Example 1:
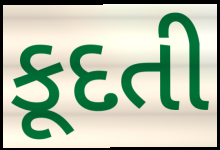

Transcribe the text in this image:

કૂદતી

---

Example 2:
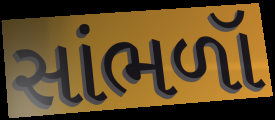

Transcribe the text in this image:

સાંભળૉ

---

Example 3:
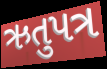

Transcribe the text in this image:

ઋતુપત્ર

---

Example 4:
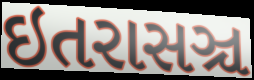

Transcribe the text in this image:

ઇતરાસઞ્ચ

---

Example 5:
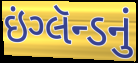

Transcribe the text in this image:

ઇંગ્લૅન્ડનું